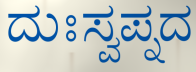
ದುಃಸ್ವಪ್ನದ